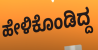
ಹೇಳಿಕೊಂಡಿದ್ದ